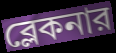
ব্লেকনার